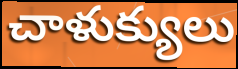
చాళుక్యులు